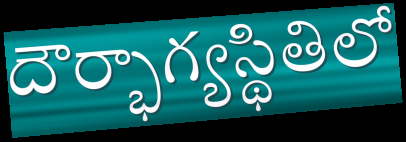
దౌర్భాగ్యస్థితిలో